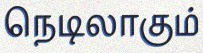
நெடிலாகும்